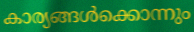
കാര്യങ്ങൾക്കൊന്നും